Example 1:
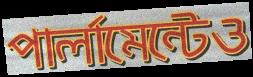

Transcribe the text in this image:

পার্লামেন্টেও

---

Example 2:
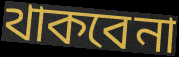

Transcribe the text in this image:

থাকবেনা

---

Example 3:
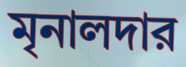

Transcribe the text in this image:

মৃনালদার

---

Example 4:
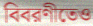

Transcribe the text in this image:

বিবরণীতেও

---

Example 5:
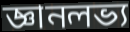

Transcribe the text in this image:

জ্ঞানলভ্য